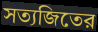
সত্যজিতের